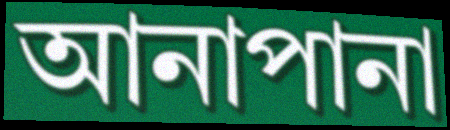
আনাপানা